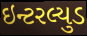
ઇન્ટરલ્યુડ